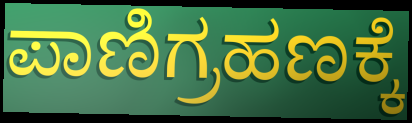
ಪಾಣಿಗ್ರಹಣಕ್ಕೆ